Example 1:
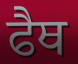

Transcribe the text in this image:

ਫੈਥ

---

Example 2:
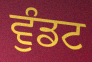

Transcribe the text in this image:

ਵੁੰਡਟ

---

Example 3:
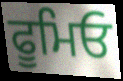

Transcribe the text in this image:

ਫੂਮਿਓ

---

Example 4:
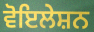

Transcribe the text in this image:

ਵੋਇਲੇਸ਼ਨ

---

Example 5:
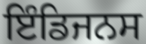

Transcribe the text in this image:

ਇੰਡਿਜਨਸ